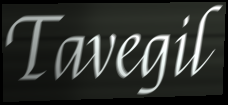
Tavegil